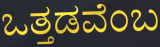
ಒತ್ತಡವೆಂಬ